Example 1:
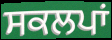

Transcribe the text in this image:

ਸਕਲਪਾਂ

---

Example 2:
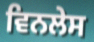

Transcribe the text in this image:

ਵਿਨਲੇਸ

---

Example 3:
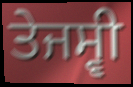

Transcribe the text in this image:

ਤੇਜਸ੍ਵੀ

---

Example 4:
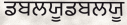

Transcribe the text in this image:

ਡਬਲਯੂਡਬਲਯੂ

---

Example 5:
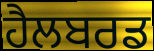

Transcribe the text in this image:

ਹੈਲਬਰਡ